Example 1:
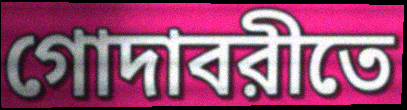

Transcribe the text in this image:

গোদাবরীতে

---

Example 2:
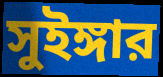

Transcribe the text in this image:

সুইঙ্গার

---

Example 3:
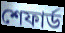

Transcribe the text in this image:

শেফার্ড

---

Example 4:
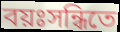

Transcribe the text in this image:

বয়ঃসন্ধিতে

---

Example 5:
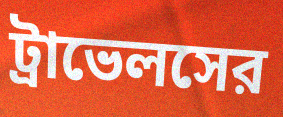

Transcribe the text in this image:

ট্রাভেলসের